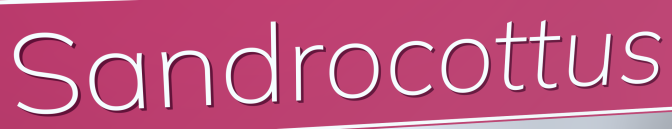
Sandrocottus